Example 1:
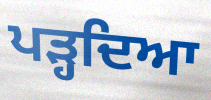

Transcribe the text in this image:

ਪੜ੍ਹਦਿਆ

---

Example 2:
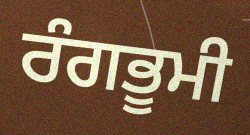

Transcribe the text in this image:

ਰੰਗਭੂਮੀ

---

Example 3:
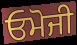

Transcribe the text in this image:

ਓਮੋਜੀ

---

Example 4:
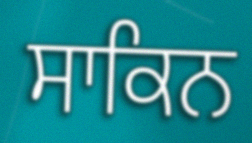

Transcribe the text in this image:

ਸਾਕਿਨ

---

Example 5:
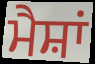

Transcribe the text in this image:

ਮੈਸ਼ਾਂ